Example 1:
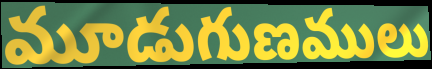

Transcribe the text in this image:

మూడుగుణములు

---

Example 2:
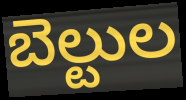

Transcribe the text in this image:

బెల్టుల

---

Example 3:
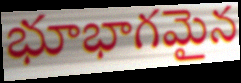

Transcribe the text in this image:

భూభాగమైన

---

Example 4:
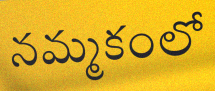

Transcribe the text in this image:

నమ్మకంలో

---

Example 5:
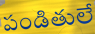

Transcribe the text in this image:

పండితులే